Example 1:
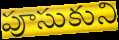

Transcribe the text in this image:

పూసుకుని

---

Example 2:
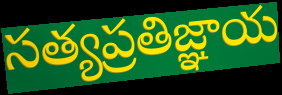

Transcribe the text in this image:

సత్యప్రతిజ్ఞాయ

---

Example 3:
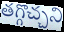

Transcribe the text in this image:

తగ్గొచ్చని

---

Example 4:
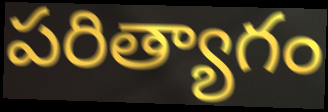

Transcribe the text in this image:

పరిత్యాగం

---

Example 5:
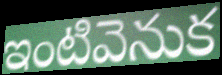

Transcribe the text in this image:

ఇంటివెనుక